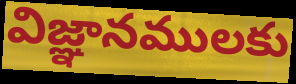
విజ్ఞానములకు